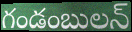
గండంబులన్